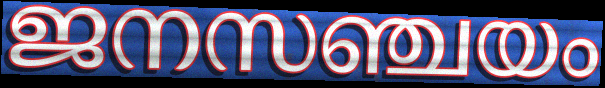
ജനസഞ്ചയം